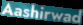
Aashirwad